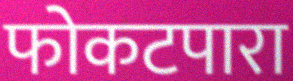
फोकटपारा